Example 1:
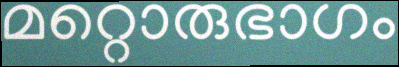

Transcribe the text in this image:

മറ്റൊരുഭാഗം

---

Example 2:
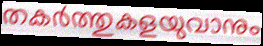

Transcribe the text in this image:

തകർത്തുകളയുവാനും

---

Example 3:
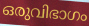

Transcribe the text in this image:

ഒരുവിഭാഗം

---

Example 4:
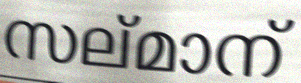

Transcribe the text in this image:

സല്മാന്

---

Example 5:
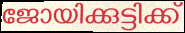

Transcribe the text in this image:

ജോയിക്കുട്ടിക്ക്